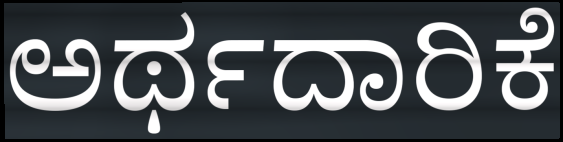
ಅರ್ಥದಾರಿಕೆ